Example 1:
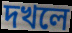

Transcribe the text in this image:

দখলে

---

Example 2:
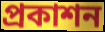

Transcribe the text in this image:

প্ৰকাশন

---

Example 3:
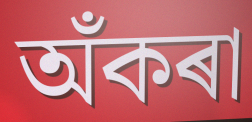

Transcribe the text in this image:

অঁকৰা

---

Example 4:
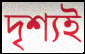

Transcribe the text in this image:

দৃশ্যই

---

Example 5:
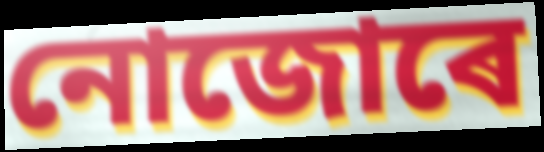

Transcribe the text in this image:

নোজোৰে